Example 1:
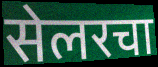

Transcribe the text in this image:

सेलरचा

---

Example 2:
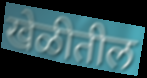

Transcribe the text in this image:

खेळीतील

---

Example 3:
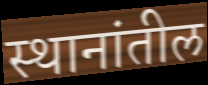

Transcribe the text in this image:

स्थानांतील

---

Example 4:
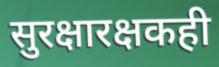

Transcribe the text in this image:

सुरक्षारक्षकही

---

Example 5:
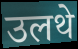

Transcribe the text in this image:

उलथे